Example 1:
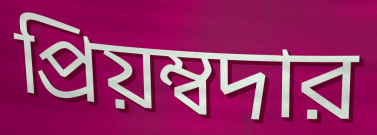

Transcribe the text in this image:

প্রিয়ম্বদার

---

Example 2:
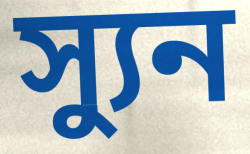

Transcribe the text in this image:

স্যুন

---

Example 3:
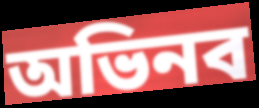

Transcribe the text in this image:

অভিনব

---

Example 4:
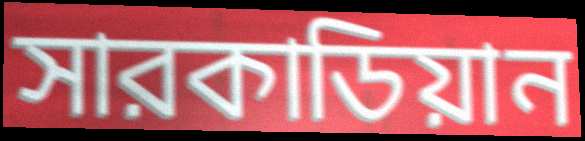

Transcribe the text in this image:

সারকাডিয়ান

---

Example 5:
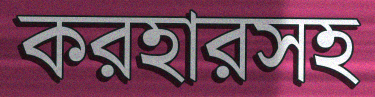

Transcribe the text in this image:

করহারসহ